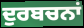
ਦੁਰਬਚਨਾਂ